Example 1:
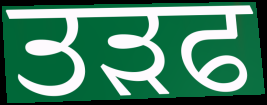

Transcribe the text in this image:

ਤੜਫ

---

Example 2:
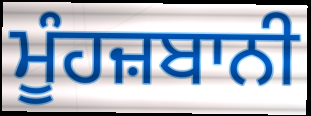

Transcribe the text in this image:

ਮੂੰਹਜ਼ਬਾਨੀ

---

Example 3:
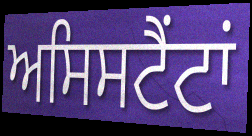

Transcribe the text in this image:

ਅਸਿਸਟੈਂਟਾਂ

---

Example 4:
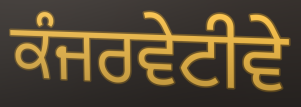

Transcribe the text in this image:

ਕੰਜਰਵੇਟੀਵੇ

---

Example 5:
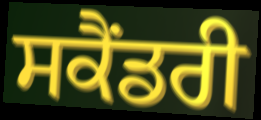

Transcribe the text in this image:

ਸਕੈਂਡਰੀ